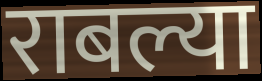
राबल्या